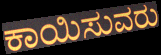
ಕಾಯಿಸುವರು